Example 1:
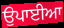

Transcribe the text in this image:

ਉਪਾਈਆ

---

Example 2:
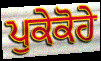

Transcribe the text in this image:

ਪੁਕੇਕੋਹੇ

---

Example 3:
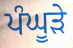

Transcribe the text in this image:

ਪੰਘੂੜੇ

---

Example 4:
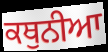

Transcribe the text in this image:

ਕਥੁਨੀਆ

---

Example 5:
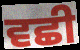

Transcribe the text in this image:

ਵਛੀ